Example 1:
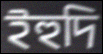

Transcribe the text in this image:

ইহুদি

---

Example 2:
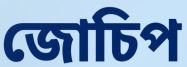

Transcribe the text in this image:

জোচিপ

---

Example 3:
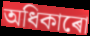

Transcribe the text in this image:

অধিকাৰো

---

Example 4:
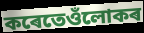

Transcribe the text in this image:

কৰেতেওঁলোকৰ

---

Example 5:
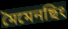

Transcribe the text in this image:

মৈমেনছিং